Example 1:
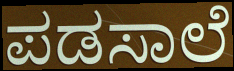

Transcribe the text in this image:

ಪಡಸಾಲೆ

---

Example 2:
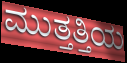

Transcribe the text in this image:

ಮುತ್ತತ್ತಿಯ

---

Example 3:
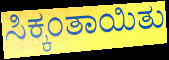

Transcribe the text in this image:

ಸಿಕ್ಕಂತಾಯಿತು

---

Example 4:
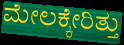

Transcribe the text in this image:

ಮೇಲಕ್ಕೇರಿತ್ತು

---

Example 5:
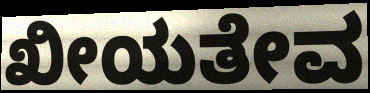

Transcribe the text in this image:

ಖೀಯತೇವ